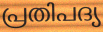
പ്രതിപദ്യ